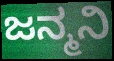
ಜನ್ಮನಿ